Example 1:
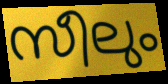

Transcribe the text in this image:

സീലും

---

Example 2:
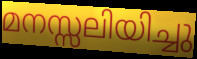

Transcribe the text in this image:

മനസ്സലിയിച്ചു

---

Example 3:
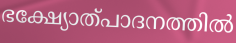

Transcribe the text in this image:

ഭക്ഷ്യോത്പാദനത്തിൽ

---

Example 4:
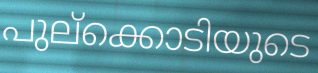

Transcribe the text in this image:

പുല്ക്കൊടിയുടെ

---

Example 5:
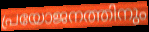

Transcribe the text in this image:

പ്രയോജനത്തിനും